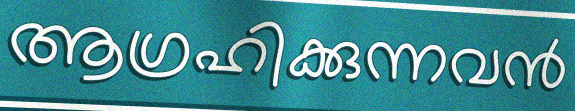
ആഗ്രഹിക്കുന്നവൻ